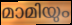
മാമിയും